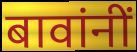
बावांनीं